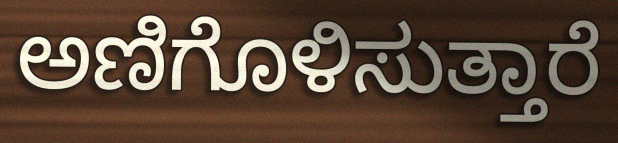
ಅಣಿಗೊಳಿಸುತ್ತಾರೆ